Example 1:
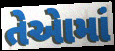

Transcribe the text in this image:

તેએામાં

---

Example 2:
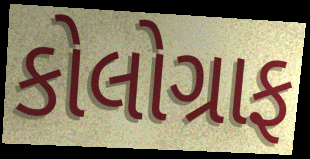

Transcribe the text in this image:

કોલોગ્રાફ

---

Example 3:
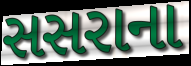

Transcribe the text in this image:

સસરાના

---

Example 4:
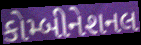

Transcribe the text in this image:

કોમ્બીનેશનલ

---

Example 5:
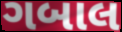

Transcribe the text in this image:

ગબાલ